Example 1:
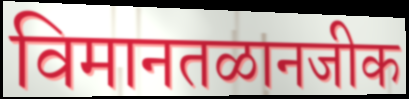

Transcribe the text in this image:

विमानतळानजीक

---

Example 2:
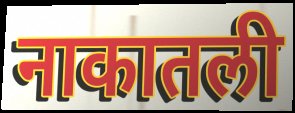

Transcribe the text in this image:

नाकातली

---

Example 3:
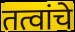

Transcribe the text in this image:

तत्वांचे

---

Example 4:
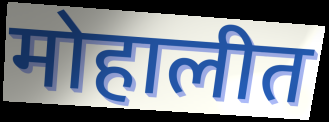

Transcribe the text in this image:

मोहालीत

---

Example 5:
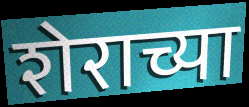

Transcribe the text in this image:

शेराच्या